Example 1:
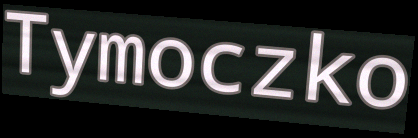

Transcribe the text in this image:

Tymoczko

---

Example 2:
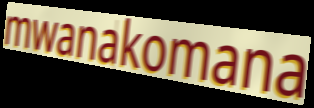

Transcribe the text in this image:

mwanakomana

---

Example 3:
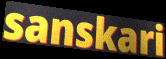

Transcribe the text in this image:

sanskari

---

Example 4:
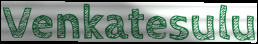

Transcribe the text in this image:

Venkatesulu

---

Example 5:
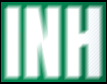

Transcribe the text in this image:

INH